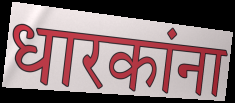
धारकांना